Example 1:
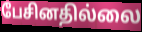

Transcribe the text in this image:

பேசினதில்லை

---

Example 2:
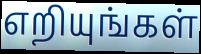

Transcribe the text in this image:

எறியுங்கள்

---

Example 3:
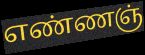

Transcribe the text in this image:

எண்ணஞ்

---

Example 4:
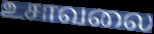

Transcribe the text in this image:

உசாவலை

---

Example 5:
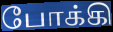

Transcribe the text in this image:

போக்கி